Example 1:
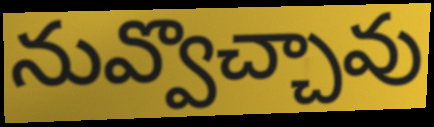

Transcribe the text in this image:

నువ్వొచ్చావు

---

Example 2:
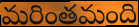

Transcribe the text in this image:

మరింతమంది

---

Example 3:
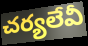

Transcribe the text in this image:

చర్యలేవీ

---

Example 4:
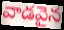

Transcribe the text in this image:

వాడవైన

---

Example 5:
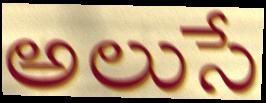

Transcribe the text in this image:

అలుసే